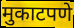
मुकाटपणे